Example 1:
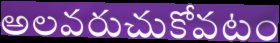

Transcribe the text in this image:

అలవరుచుకోవటం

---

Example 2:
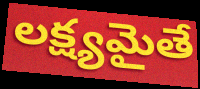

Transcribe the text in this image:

లక్ష్యమైతే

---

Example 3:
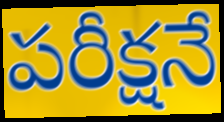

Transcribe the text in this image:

పరీక్షనే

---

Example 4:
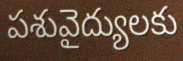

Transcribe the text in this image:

పశువైద్యులకు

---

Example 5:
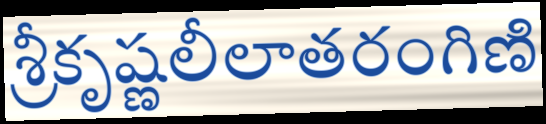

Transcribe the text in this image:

శ్రీకృష్ణలీలాతరంగిణి